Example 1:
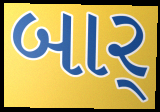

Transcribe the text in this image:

બાર્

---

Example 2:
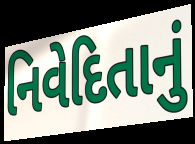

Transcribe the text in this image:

નિવેદિતાનું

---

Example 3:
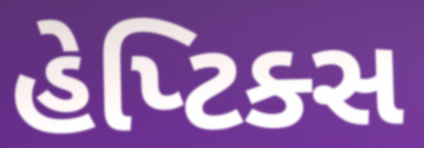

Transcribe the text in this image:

હેપ્ટિક્સ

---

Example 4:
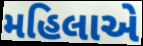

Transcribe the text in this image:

મહિલાએ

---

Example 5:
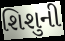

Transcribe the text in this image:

શિશુની